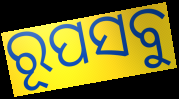
ରୂପସବୁ